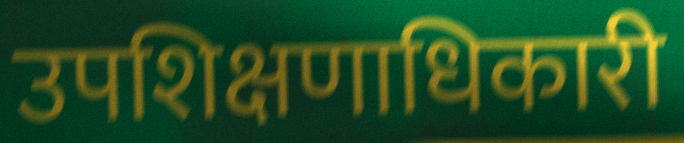
उपशिक्षणाधिकारी